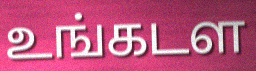
உங்கடள